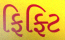
ફિફ્ટિ